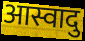
आस्वादु